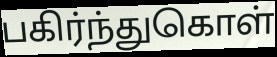
பகிர்ந்துகொள்